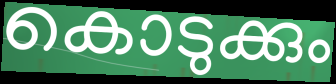
കൊടുക്കും